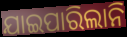
ଯାଇପାରିଲାନି